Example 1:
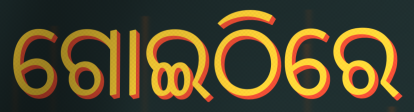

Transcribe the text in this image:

ଗୋଇଠିରେ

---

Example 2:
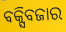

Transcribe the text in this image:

ବକ୍ସିବଜାର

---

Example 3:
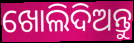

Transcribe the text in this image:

ଖୋଲିଦିଅନ୍ତୁ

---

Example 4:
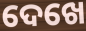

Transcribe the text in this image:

ଦେଖେ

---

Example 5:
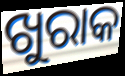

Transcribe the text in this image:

ଖୁରାକ